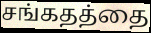
சங்கதத்தை